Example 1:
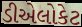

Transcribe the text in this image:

ડીએલોકેટ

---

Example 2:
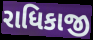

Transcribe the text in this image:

રાધિકાજી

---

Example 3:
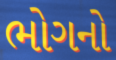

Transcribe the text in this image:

ભોગનો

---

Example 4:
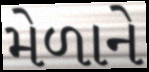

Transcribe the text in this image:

મેળાને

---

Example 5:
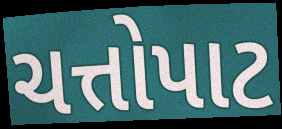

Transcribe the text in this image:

ચત્તોપાટ